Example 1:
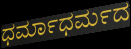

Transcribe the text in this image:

ಧರ್ಮಾಧರ್ಮದ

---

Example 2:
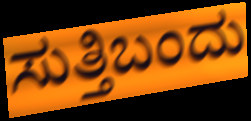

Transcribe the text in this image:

ಸುತ್ತಿಬಂದು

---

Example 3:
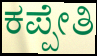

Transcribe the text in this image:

ಕಪ್ಪೇತಿ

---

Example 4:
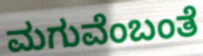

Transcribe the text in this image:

ಮಗುವೆಂಬಂತೆ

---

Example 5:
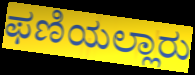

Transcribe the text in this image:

ಫಣಿಯಲ್ಲಾರು